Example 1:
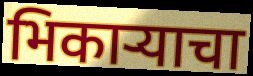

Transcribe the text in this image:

भिकाऱ्याचा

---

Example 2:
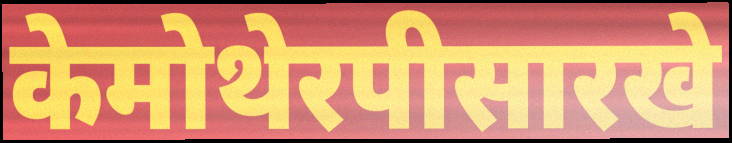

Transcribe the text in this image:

केमोथेरपीसारखे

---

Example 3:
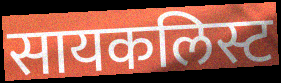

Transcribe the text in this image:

सायकलिस्ट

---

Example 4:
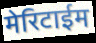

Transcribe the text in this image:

मेरिटाईम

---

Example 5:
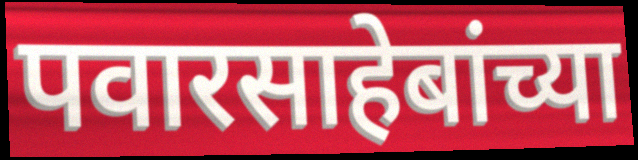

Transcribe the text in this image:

पवारसाहेबांच्या